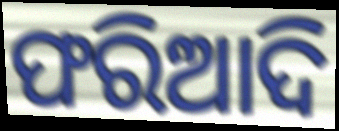
ଫରିଆଦି